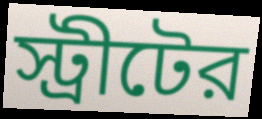
স্ট্রীটের